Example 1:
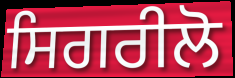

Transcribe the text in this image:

ਸਿਗਰੀਲੋ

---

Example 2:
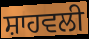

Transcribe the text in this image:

ਸ਼ਾਹਵਲੀ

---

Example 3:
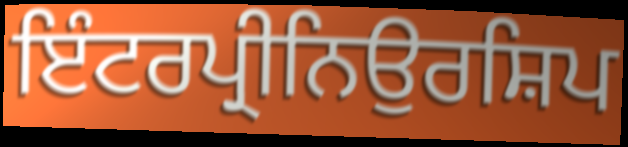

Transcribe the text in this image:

ਇੰਟਰਪ੍ਰੀਨਿਉਰਸ਼ਿਪ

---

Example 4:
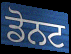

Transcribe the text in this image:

ਡੋਨਟ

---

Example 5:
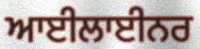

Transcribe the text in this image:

ਆਈਲਾਈਨਰ